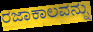
ರಜಾಕಾಲವನ್ನು